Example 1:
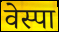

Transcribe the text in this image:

वेस्पा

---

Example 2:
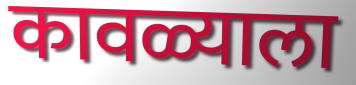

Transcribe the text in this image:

कावळ्याला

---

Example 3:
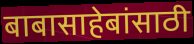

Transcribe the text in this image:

बाबासाहेबांसाठी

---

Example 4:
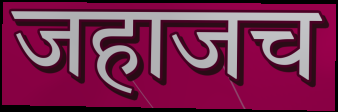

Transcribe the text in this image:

जहाजच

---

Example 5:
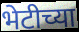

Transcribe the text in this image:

भेटीच्या